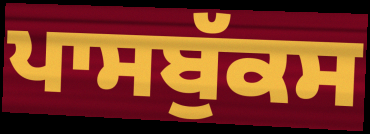
ਪਾਸਬੁੱਕਸ